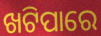
ଖଟିପାରେ